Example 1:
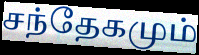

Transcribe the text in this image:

சந்தேகமும்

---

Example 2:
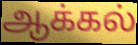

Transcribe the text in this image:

ஆக்கல்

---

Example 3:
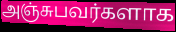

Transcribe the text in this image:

அஞ்சுபவர்களாக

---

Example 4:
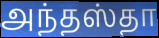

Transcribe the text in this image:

அந்தஸ்தா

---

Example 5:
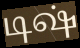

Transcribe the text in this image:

டிஷ்